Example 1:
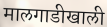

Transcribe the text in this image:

मालगाडीखाली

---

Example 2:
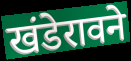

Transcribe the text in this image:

खंडेरावने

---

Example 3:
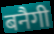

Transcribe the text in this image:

बनैगी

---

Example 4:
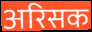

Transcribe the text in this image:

अरिसक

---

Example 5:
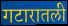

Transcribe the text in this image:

गटारातली